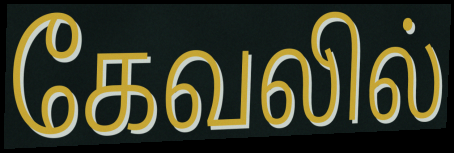
கேவலில்